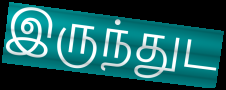
இருந்துட